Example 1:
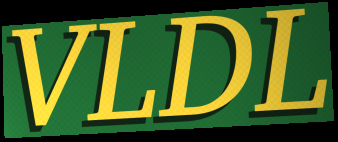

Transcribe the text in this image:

VLDL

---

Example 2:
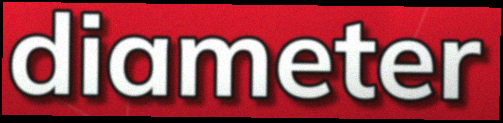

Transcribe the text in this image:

diameter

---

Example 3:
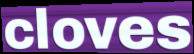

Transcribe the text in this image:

cloves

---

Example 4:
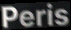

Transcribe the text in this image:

Peris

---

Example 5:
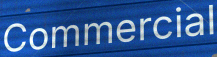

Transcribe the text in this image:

Commercial